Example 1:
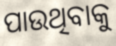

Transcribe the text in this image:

ପାଉଥିବାକୁ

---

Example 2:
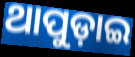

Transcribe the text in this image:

ଥାପୁଡ଼ାଇ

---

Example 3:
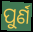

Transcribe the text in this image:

ପୁର୍ଣ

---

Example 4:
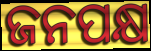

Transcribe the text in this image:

ଜନପକ୍ଷ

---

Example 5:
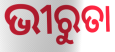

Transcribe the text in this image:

ଭୀରୁତା